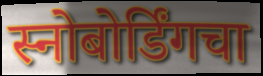
स्नोबोर्डिंगचा